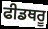
ਫੀਡਥਰੂ